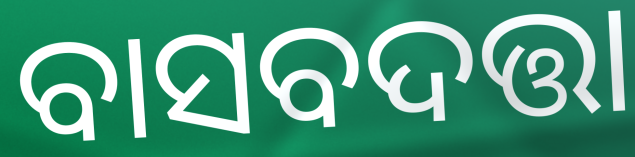
ବାସବଦତ୍ତା